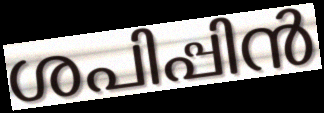
ശപിപ്പിൻ